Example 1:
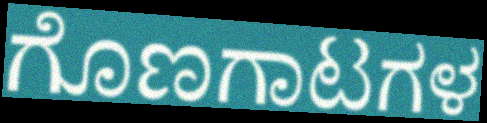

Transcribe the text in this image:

ಗೊಣಗಾಟಗಳ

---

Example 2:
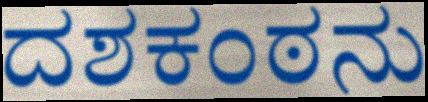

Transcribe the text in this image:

ದಶಕಂಠನು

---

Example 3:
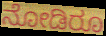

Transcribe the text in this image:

ನೋಡಿರೂ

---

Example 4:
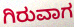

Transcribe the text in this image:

ಗಿರುವಾಗ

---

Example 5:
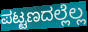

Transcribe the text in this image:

ಪಟ್ಟಣದಲ್ಲೆಲ್ಲ